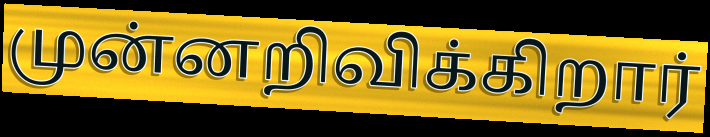
முன்னறிவிக்கிறார்